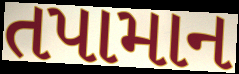
તપામાન